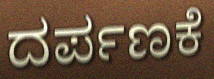
ದರ್ಪಣಕೆ